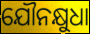
ଯୌନକ୍ଷୁଧା